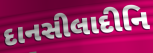
દાનસીલાદીનિ